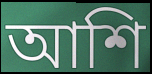
আশি